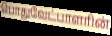
பொதுவேட்பாளரின்